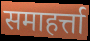
समाहर्त्ता